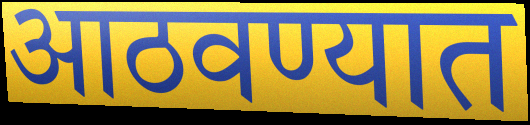
आठवण्यात